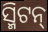
ସ୍ମିଟନ୍